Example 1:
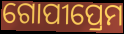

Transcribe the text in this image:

ଗୋପୀପ୍ରେମ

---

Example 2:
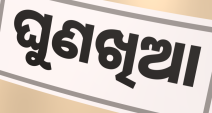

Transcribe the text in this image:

ଘୁଣଖିଆ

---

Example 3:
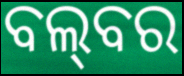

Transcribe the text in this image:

ବଲ୍‌ବର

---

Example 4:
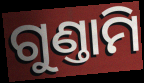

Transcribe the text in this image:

ଗୁଣ୍ତାମି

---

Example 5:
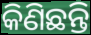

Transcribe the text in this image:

କିଣିଛନ୍ତି